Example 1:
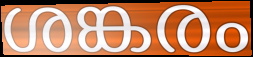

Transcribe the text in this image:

ശങ്കരം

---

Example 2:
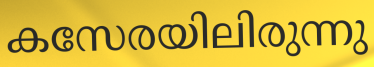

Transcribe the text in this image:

കസേരയിലിരുന്നു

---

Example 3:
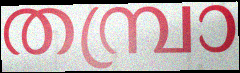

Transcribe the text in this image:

തമ്പ്രാ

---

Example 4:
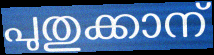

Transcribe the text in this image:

പുതുക്കാന്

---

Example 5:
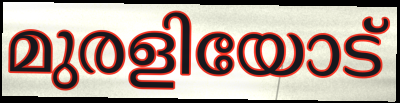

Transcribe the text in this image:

മുരളിയോട്